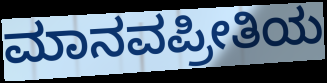
ಮಾನವಪ್ರೀತಿಯ